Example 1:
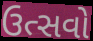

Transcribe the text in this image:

ઉત્સવો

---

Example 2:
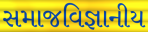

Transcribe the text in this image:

સમાજવિજ્ઞાનીય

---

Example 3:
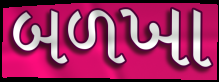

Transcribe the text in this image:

બળખા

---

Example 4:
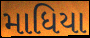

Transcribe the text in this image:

માધિયા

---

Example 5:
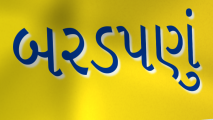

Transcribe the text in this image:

બરડપણું